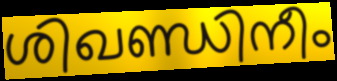
ശിഖണ്ഡിനീം